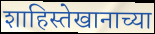
शाहिस्तेखानाच्या